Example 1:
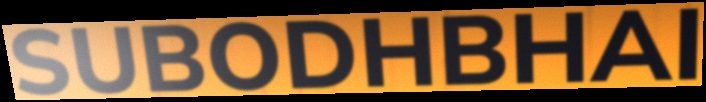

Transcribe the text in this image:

SUBODHBHAI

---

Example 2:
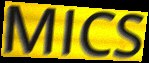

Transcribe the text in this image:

MICS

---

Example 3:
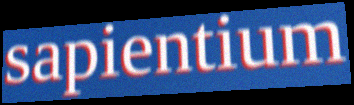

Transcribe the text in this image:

sapientium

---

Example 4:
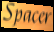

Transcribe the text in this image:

Spacer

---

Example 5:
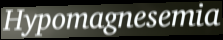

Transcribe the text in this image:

Hypomagnesemia